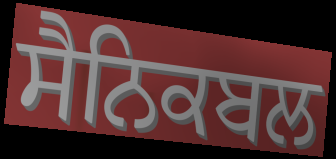
ਸੈਨਿਕਬਲ